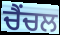
ਚੈਂਚਲ